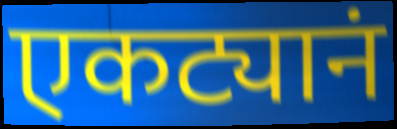
एकट्यानं